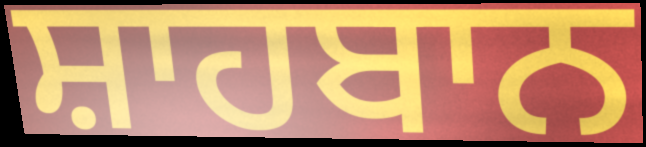
ਸ਼ਾਹਬਾਨ